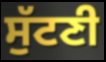
ਸੁੱਟਣੀ